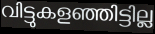
വിട്ടുകളഞ്ഞിട്ടില്ല